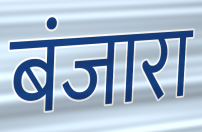
बंजारा